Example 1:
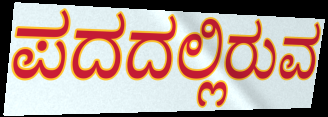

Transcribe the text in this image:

ಪದದಲ್ಲಿರುವ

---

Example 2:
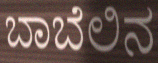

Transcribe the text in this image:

ಬಾಬೆಲಿನ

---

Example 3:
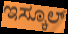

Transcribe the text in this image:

ಇಸ್ಕೂಲ್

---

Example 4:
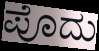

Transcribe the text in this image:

ಪೊದು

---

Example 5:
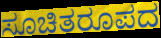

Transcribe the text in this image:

ಸೂಚಿತರೂಪದ